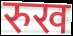
रुख